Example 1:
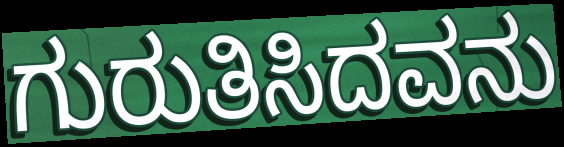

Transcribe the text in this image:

ಗುರುತಿಸಿದವನು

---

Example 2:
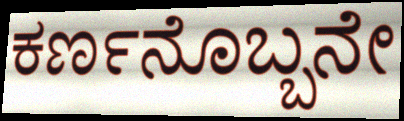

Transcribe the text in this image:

ಕರ್ಣನೊಬ್ಬನೇ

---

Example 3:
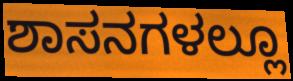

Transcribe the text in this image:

ಶಾಸನಗಳಲ್ಲೂ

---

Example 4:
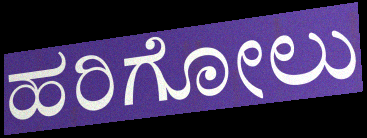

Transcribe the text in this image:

ಹರಿಗೋಲು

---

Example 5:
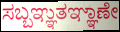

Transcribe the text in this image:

ಸಬ್ಬಞ್ಞುತಞ್ಞಾಣೇ